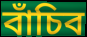
বাঁচিব